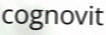
cognovit